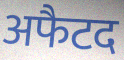
अफैटद